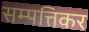
सम्पत्तिकर